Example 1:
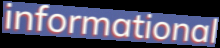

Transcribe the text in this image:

informational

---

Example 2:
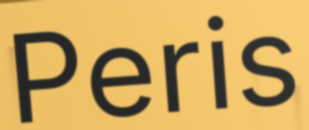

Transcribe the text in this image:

Peris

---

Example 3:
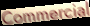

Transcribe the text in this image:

Commercial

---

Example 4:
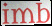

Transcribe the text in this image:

imb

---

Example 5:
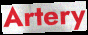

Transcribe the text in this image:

Artery